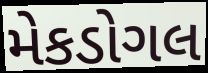
મેકડોગલ